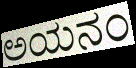
ಅಯನಂ